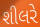
શીલરે